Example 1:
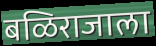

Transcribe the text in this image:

बळिराजाला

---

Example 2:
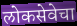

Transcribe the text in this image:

लोकसेवेचा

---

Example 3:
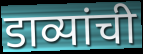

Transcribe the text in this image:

डाव्यांची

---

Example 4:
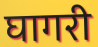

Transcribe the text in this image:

घागरी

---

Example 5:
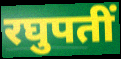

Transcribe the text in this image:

रघुपतीं